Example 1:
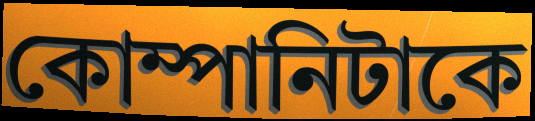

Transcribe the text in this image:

কোম্পানিটাকে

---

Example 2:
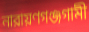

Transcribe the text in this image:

নারায়ণগঞ্জগামী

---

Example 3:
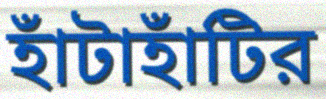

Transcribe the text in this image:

হাঁটাহাঁটির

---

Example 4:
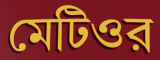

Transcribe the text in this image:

মেটিওর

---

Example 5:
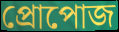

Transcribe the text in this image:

প্রোপোজ